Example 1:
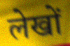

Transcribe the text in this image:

लेखों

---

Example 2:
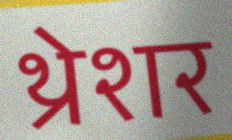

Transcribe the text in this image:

थ्रेशर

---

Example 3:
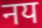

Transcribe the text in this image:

नय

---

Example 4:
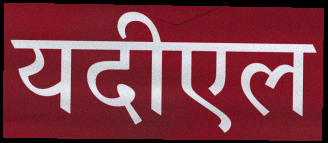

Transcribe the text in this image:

यदीएल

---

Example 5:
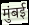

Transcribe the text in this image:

मुंबई